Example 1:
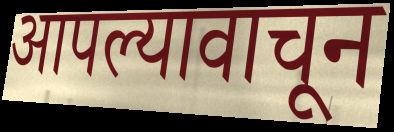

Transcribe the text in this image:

आपल्यावाचून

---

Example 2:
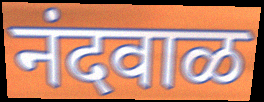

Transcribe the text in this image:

नंदवाळ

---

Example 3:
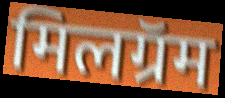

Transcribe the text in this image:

मिलग्रॅम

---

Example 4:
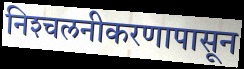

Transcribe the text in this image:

निश्चलनीकरणापासून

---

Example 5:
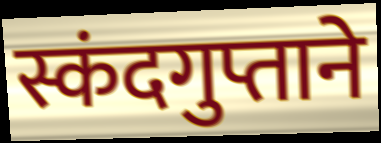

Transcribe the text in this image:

स्कंदगुप्ताने